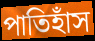
পাতিহাঁস